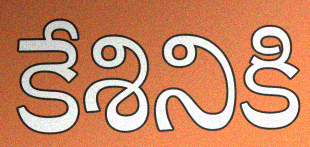
కేశినికి